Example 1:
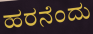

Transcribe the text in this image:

ಹರನೆಂದು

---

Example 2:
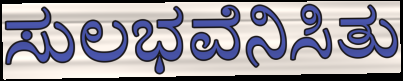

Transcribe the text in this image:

ಸುಲಭವೆನಿಸಿತು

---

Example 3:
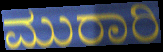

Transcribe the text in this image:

ಮುರಾರಿ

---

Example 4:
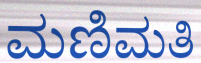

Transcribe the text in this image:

ಮಣಿಮತಿ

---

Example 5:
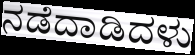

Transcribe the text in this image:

ನಡೆದಾಡಿದಳು